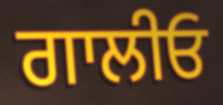
ਗਾਲੀਓ